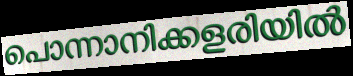
പൊന്നാനിക്കളരിയിൽ